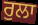
ਰੁਲਾ